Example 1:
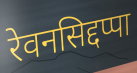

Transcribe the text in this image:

रेवनसिद्दप्पा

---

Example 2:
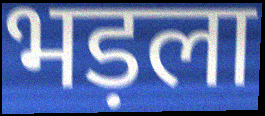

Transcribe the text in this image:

भड़ला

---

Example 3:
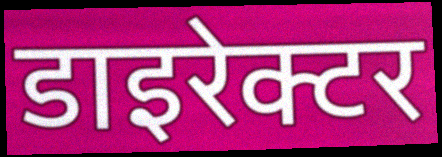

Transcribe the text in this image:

डाइरेक्टर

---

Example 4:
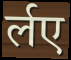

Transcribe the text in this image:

र्लए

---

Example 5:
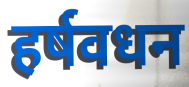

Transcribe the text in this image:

हर्षवधन